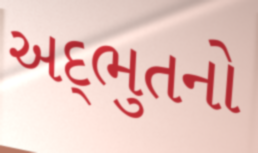
અદ્‌ભુતનો